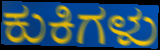
ಕುಕಿಗಳು